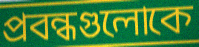
প্রবন্ধগুলোকে